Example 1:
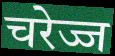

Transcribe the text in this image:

चरेज्ज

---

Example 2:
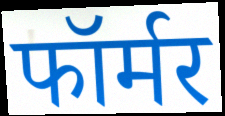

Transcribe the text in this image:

फॉर्मर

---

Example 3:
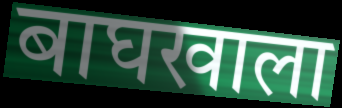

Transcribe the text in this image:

बाघखाला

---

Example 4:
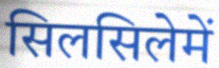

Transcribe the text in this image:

सिलसिलेमें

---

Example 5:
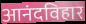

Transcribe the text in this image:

आनंदविहार